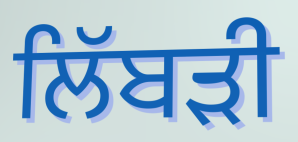
ਲਿੱਬੜੀ